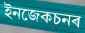
ইনজেকচনৰ